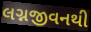
લગ્નજીવનથી